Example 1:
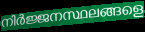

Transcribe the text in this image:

നിർജ്ജനസ്ഥലങ്ങളെ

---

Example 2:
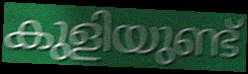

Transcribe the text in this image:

കുളിയുണ്ട്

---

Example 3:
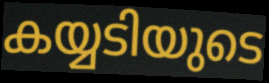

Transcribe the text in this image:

കയ്യടിയുടെ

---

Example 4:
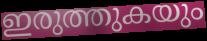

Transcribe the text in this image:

ഇരുത്തുകയും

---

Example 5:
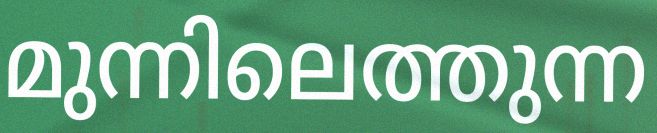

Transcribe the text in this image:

മുന്നിലെത്തുന്ന